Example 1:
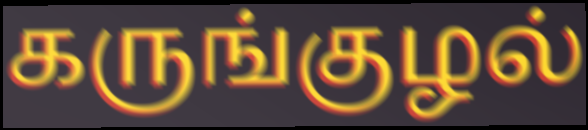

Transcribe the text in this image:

கருங்குழல்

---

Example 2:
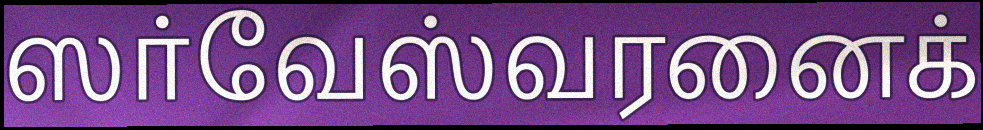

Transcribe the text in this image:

ஸர்வேஸ்வரனைக்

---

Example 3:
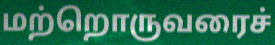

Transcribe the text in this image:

மற்றொருவரைச்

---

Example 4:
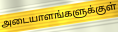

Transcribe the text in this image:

அடையாளங்களுக்குள்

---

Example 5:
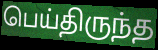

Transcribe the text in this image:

பெய்திருந்த